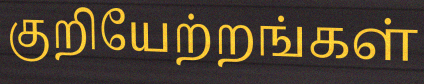
குறியேற்றங்கள்